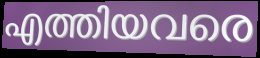
എത്തിയവരെ